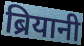
ब्रियानी